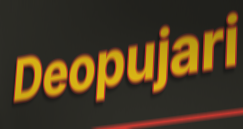
Deopujari